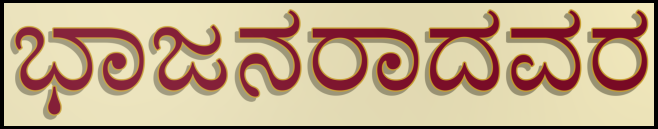
ಭಾಜನರಾದವರ